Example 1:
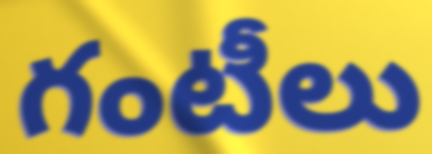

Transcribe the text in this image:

గంటీలు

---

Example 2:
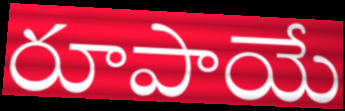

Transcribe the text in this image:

రూపాయే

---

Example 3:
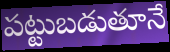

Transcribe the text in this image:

పట్టుబడుతూనే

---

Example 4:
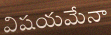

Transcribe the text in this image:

విషయమేనా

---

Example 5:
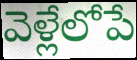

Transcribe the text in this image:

వెళ్లేలోపే